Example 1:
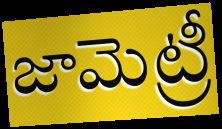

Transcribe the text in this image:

జామెట్రీ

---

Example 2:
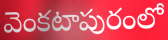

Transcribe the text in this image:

వెంకటాపురంలో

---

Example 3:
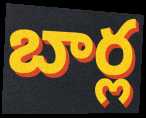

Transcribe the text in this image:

బార్ల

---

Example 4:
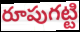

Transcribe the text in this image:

రూపుగట్టి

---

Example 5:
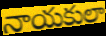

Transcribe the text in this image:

నాయకులా